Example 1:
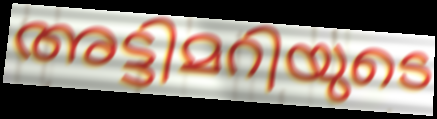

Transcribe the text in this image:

അട്ടിമറിയുടെ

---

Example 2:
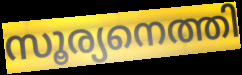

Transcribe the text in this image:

സൂര്യനെത്തി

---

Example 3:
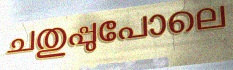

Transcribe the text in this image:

ചതുപ്പുപോലെ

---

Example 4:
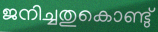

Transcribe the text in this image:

ജനിച്ചതുകൊണ്ടു്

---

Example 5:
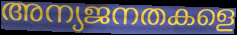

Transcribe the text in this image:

അന്യജനതകളെ